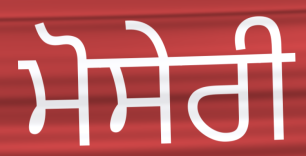
ਮੋਸੇਰੀ